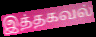
இத்தகவல்